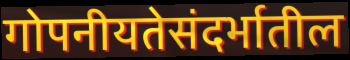
गोपनीयतेसंदर्भातील